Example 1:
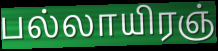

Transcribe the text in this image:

பல்லாயிரஞ்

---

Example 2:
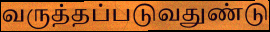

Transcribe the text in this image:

வருத்தப்படுவதுண்டு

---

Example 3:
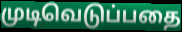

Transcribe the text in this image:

முடிவெடுப்பதை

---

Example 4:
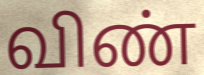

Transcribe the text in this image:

விண்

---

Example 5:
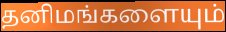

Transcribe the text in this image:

தனிமங்களையும்